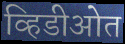
व्हिडीओत